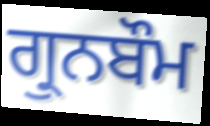
ਗ੍ਰੁਨਬੌਮ